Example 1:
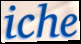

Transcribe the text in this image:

iche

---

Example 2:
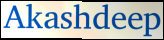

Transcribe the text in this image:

Akashdeep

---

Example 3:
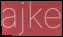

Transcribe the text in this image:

ajke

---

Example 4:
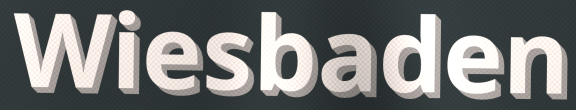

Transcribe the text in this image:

Wiesbaden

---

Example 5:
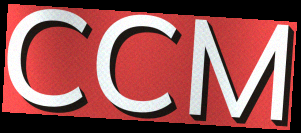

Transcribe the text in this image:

CCM